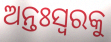
ଅନ୍ତଃସ୍ୱରକୁ